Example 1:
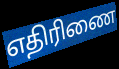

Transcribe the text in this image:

எதிரிணை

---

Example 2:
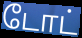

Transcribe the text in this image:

டோட்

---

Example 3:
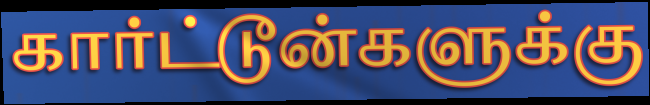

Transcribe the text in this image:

கார்ட்டூன்களுக்கு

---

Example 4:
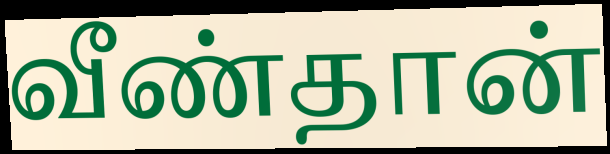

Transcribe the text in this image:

வீண்தான்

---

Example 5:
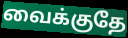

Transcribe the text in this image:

வைக்குதே